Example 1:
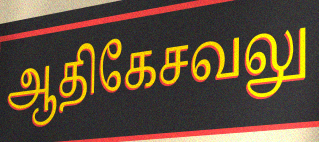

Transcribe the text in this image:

ஆதிகேசவலு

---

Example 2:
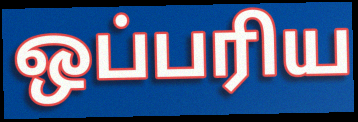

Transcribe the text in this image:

ஒப்பரிய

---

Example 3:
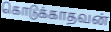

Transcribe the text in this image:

கொடுக்காதவன்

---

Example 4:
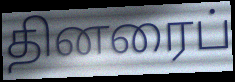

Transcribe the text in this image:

தினரைப்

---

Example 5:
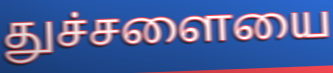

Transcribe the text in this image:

துச்சளையை